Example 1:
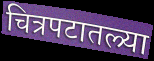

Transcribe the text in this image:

चित्रपटातल्या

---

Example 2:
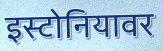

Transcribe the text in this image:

इस्टोनियावर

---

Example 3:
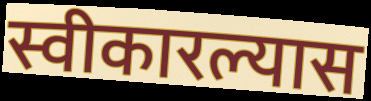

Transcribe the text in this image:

स्वीकारल्यास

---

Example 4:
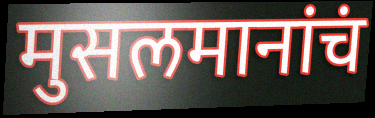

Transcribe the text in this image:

मुसलमानांचं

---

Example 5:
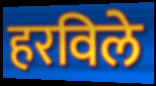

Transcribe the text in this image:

हरविले